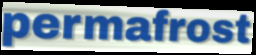
permafrost